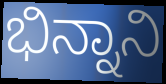
ಭಿನ್ನಾನಿ